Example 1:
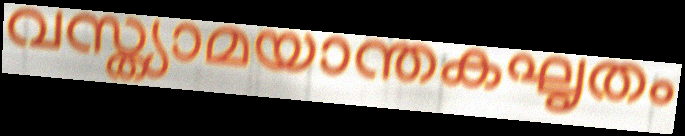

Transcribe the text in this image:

വസ്ത്യാമയാന്തകഘൃതം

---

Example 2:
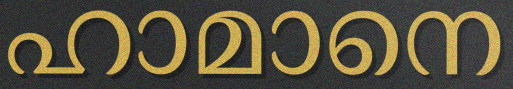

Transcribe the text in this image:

ഹാമാനെ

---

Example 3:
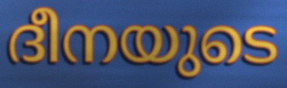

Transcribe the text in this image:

ദീനയുടെ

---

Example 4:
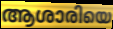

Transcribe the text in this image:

ആശാരിയെ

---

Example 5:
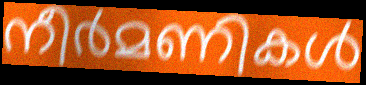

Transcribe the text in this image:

നീർമണികൾ